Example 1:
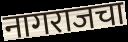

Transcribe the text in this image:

नागराजचा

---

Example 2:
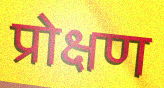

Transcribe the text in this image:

प्रोक्षण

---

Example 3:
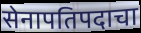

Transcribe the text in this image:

सेनापतिपदाचा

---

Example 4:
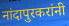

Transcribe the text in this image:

नांदापुरकरांनी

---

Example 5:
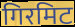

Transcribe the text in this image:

गिरमिट